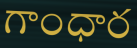
గాంధార